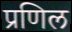
प्रणिल